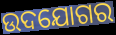
ଉଦଯୋଗର